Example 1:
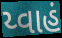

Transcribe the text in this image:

ય્વાહં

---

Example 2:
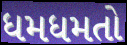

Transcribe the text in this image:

ધમધમતો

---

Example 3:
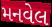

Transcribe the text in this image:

મનવેલ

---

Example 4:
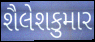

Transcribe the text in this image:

શૈલેશકુમાર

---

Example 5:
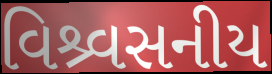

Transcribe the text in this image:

વિશ્ર્વસનીય